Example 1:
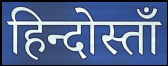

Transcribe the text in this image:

हिन्दोस्ताँ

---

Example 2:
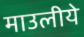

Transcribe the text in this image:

माउलीये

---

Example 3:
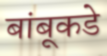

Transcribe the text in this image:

बांबूकडे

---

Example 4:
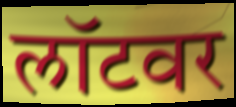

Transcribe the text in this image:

लॉटवर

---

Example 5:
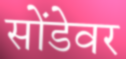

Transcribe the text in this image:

सोंडेवर